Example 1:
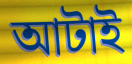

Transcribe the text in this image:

আটাই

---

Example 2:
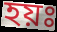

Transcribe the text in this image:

হয়ঃ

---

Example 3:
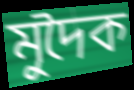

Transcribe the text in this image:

মুদৈক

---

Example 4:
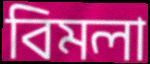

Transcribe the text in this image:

বিমলা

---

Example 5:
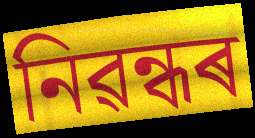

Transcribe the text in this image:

নিৱন্ধৰ